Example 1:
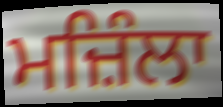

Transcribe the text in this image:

ਮਜ਼ਿੰਲਾ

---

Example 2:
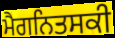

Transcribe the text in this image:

ਮੈਗਨਿਤਸਕੀ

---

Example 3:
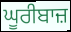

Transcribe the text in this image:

ਘੂਰੀਬਾਜ਼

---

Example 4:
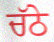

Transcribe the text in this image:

ਚੱਠੇ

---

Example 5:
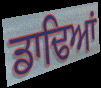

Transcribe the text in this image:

ਡਾਢਿਆਂ